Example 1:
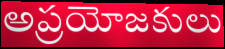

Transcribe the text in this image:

అప్రయోజకులు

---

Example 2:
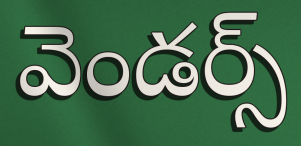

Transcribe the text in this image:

వెండర్స్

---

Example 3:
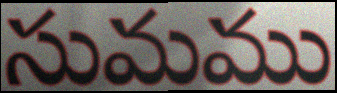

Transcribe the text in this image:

సుమము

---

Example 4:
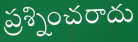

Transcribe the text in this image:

ప్రశ్నించరాదు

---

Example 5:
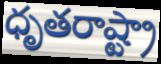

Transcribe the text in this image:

ధృతరాష్ట్రా